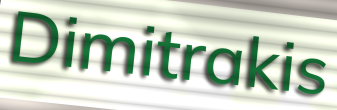
Dimitrakis